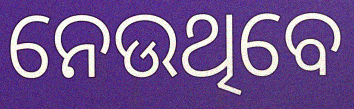
ନେଉଥିବେ